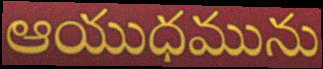
ఆయుధమును